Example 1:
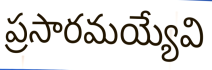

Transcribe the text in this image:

ప్రసారమయ్యేవి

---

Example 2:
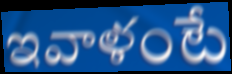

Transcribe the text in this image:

ఇవాళంటే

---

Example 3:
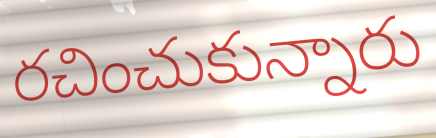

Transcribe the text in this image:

రచించుకున్నారు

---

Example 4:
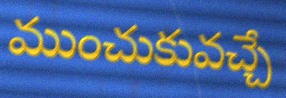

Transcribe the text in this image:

ముంచుకువచ్చే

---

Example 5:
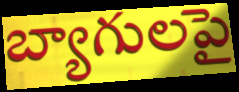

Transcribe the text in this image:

బ్యాగులపై